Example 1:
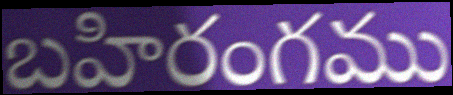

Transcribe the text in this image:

బహిరంగము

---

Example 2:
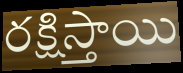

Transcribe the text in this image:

రక్షిస్తాయి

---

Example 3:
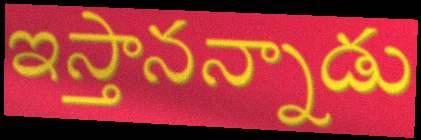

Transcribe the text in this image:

ఇస్తానన్నాడు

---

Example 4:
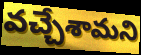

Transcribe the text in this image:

వచ్చేశామని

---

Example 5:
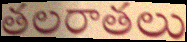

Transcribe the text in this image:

తలరాతలు